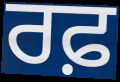
ਰਫ਼